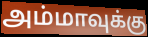
அம்மாவுக்கு